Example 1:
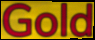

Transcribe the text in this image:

Gold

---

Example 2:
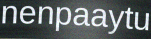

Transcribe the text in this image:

nenpaaytu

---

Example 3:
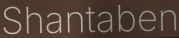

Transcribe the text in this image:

Shantaben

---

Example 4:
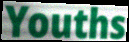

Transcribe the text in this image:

Youths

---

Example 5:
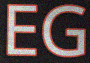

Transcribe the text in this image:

EG